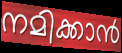
നമിക്കാൻ